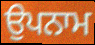
ਉਪਨਾਮ